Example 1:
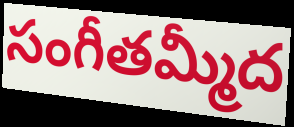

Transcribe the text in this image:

సంగీతమ్మీద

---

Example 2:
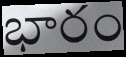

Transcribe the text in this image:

భారం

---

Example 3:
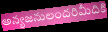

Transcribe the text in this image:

అన్యజనులందరిమీదికి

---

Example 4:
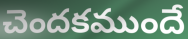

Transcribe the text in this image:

చెందకముందే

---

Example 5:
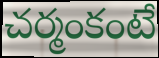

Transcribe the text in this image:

చర్మంకంటే